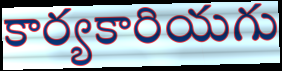
కార్యకారియగు